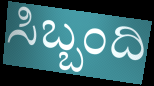
ಸಿಬ್ಬಂದಿ